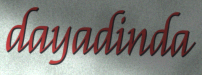
dayadinda